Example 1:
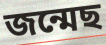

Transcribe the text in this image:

জন্মেছ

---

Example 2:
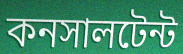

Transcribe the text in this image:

কনসালটেন্ট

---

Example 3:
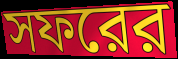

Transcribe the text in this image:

সফরের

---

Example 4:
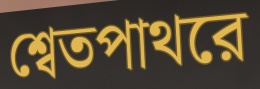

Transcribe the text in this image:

শ্বেতপাথরে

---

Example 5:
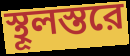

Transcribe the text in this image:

স্থূলস্তরে